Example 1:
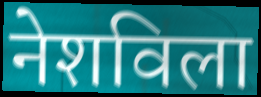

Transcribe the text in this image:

नेशविला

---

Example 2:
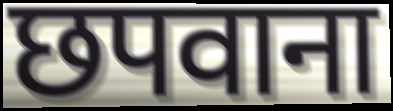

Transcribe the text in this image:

छपवाना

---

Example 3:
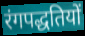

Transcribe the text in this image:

रंगपद्धतियों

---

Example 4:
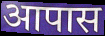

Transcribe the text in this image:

आपास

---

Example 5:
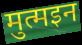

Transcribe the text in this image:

मुत्मइन